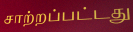
சாற்றப்பட்டது